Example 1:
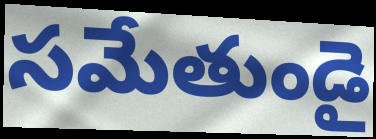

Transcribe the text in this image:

సమేతుండై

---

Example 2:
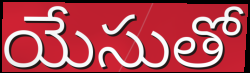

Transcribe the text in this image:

యేసుతో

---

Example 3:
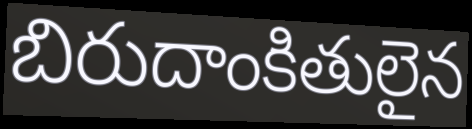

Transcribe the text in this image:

బిరుదాంకితులైన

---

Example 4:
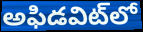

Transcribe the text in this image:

అఫిడవిట్‌లో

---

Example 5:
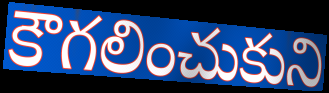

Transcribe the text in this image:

కౌగలించుకుని